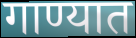
गाण्यात